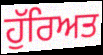
ਹੁੱਰਿਅਤ